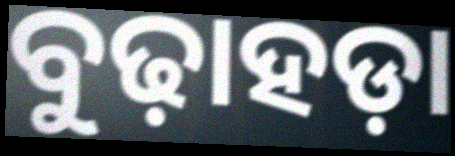
ବୁଢ଼ାହଡ଼ା